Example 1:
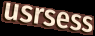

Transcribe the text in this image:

usrsess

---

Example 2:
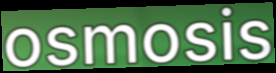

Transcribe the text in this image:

osmosis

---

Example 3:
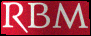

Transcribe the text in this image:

RBM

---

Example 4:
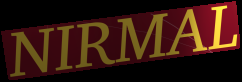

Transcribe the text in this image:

NIRMAL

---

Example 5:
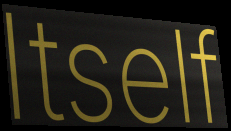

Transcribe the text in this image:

Itself